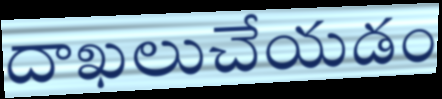
దాఖలుచేయడం